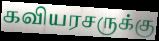
கவியரசருக்கு